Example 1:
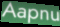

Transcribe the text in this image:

Aapnu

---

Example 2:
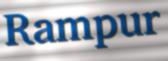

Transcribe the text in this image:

Rampur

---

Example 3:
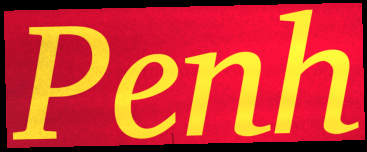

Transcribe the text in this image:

Penh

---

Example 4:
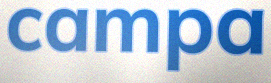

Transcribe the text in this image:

campa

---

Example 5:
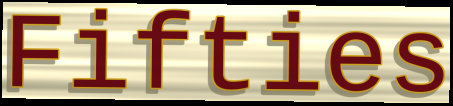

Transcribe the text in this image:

Fifties